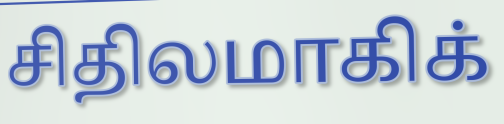
சிதிலமாகிக்